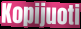
Kopijuoti